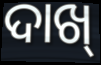
ଦାଖ୍